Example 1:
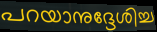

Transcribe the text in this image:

പറയാനുദ്ദേശിച്ച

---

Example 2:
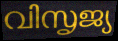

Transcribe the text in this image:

വിസൃജ്യ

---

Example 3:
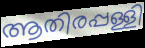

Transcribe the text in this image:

ആതിരപ്പള്ളി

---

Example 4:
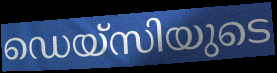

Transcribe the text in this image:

ഡെയ്സിയുടെ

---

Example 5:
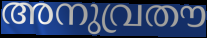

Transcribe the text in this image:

അനുവ്രതൗ